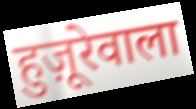
हुज़ूरेवाला